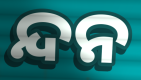
ନ୍ଦନ